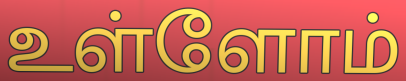
உள்ளோம்